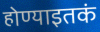
होण्याइतकं